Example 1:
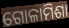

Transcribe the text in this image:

ଗୋଳାମିଶା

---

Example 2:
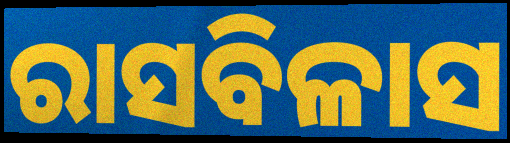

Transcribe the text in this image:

ରାସବିଳାସ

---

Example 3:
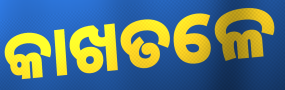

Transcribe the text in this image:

କାଖତଳେ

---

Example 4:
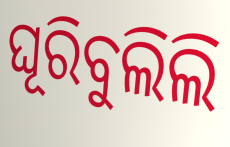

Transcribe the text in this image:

ଘୂରିବୁଲିଲି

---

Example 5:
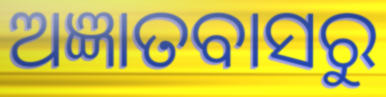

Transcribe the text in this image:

ଅଜ୍ଞାତବାସରୁ